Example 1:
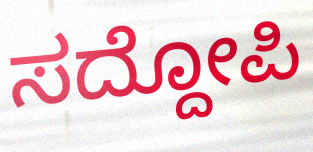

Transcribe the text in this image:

ಸದ್ದೋಪಿ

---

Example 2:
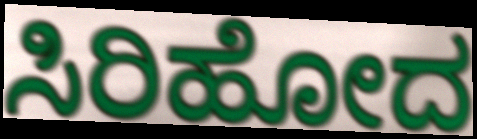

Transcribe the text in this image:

ಸಿರಿಹೋದ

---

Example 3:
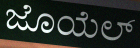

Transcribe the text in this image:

ಜೊಯೆಲ್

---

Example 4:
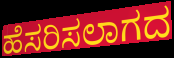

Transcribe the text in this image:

ಹೆಸರಿಸಲಾಗದ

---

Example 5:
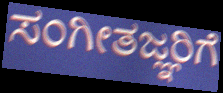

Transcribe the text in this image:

ಸಂಗೀತಜ್ಞರಿಗೆ